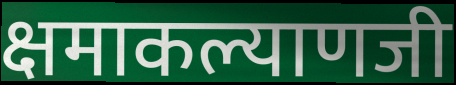
क्षमाकल्याणजी